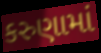
કરુણામાં